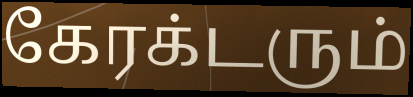
கேரக்டரும்